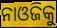
ନାଓଜିକୁ